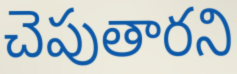
చెపుతారని